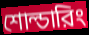
শোল্ডারিং